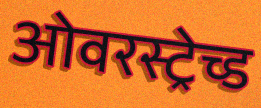
ओवरस्ट्रेच्ड